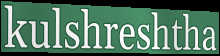
kulshreshtha